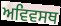
ਅਵਿਵਸਥ